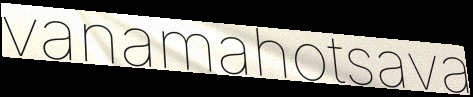
vanamahotsava